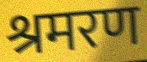
श्रमरण